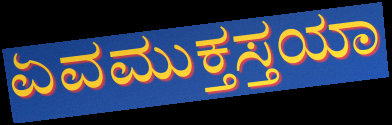
ಏವಮುಕ್ತಸ್ತಯಾ